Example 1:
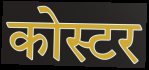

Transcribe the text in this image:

कोस्टर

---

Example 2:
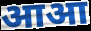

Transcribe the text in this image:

आआ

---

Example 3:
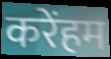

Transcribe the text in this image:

करेंहम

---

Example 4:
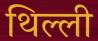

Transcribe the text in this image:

थिल्ली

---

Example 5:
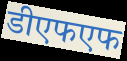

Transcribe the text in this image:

डीएफएफ